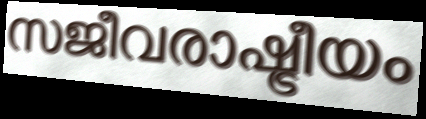
സജീവരാഷ്ട്രീയം